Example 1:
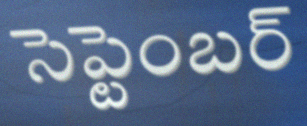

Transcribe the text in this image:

సెప్టెంబర్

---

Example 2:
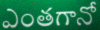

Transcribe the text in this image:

ఎంతగానో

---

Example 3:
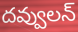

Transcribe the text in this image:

దవ్వులన్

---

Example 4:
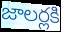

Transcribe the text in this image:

జాలర్లకి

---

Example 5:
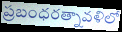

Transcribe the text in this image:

ప్రబంధరత్నావళిలో